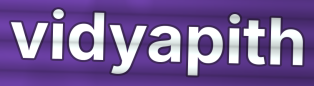
vidyapith